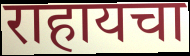
राहायचा